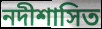
নদীশাসিত